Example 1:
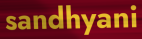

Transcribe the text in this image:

sandhyani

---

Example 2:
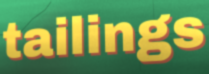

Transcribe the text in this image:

tailings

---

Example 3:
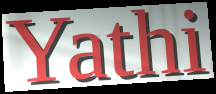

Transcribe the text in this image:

Yathi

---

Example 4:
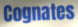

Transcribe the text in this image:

Cognates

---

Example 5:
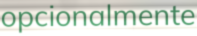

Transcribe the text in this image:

opcionalmente